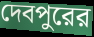
দেবপুরের